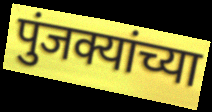
पुंजक्यांच्या